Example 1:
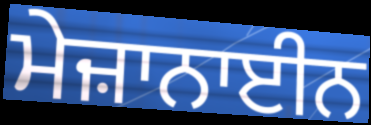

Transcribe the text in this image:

ਮੇਜ਼ਾਨਾਈਨ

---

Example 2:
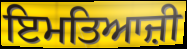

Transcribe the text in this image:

ਇਮਤਿਆਜ਼ੀ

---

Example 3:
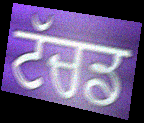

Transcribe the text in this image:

ਟੱਚਡ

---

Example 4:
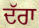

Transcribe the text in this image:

ਦੱਰਾ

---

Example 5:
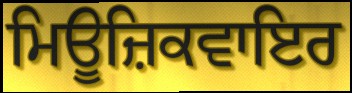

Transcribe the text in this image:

ਮਿਊਜ਼ਿਕਵਾਇਰ